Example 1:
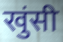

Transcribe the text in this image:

खुंसी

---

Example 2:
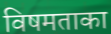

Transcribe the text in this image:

विषमताका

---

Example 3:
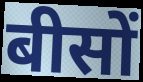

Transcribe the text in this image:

बीसों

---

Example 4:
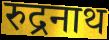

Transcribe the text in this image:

रुद्रनाथ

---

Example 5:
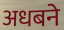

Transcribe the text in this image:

अधबने